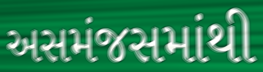
અસમંજસમાંથી